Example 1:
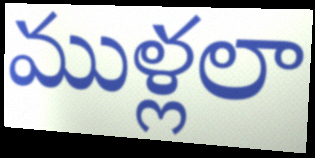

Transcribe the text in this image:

ముళ్లలా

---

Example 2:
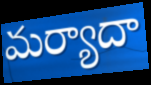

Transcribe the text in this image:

మర్యాదా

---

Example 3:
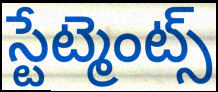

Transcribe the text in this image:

స్టేట్మెంట్స్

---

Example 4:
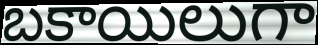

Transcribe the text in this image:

బకాయిలుగా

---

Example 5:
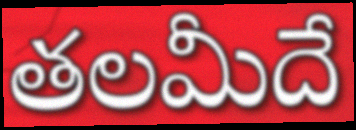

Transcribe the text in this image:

తలమీదే